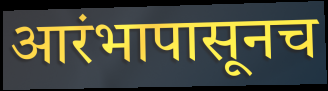
आरंभापासूनच